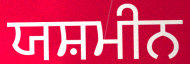
ਯਸ਼ਮੀਨ